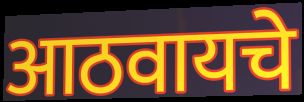
आठवायचे